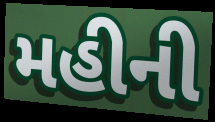
મહીની